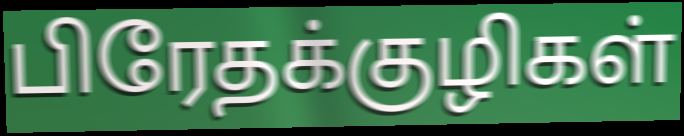
பிரேதக்குழிகள்